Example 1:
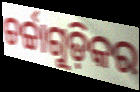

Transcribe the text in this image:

ଚର୍ଚ୍ଚାଗୁଡ଼ିକର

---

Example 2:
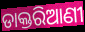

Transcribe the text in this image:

ଡାକ୍ତରିଆଣୀ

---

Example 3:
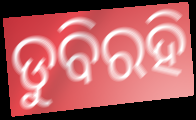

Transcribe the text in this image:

ଡୁବିରହି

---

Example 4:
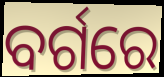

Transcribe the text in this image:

ବର୍ଗରେ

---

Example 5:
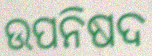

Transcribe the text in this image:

ଉପନିଷଦ